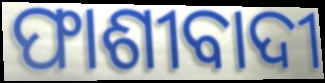
ଫାଶୀବାଦୀ